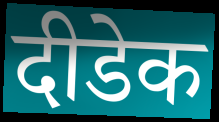
दीडेक